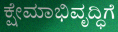
ಕ್ಷೇಮಾಭಿವೃದ್ಧಿಗೆ